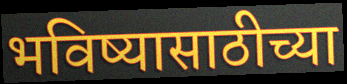
भविष्यासाठीच्या